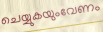
ചെയ്യുകയുംവേണം